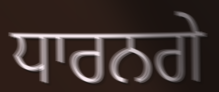
ਧਾਰਨਗੇ